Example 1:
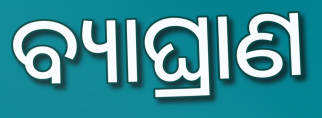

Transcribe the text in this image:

ବ୍ୟାଘ୍ରାଣ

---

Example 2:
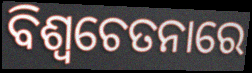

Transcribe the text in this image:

ବିଶ୍ୱଚେତନାରେ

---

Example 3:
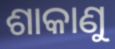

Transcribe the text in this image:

ଶାକାଣୁ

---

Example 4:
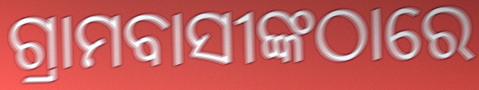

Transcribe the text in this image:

ଗ୍ରାମବାସୀଙ୍କଠାରେ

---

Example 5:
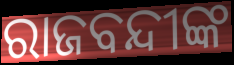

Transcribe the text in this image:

ରାଜବନ୍ଦୀଙ୍କ